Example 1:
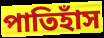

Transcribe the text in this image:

পাতিহাঁস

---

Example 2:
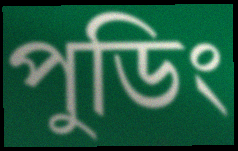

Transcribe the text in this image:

পুডিং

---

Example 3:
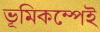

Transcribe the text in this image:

ভূমিকম্পেই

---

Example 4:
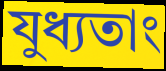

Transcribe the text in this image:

যুধ্যতাং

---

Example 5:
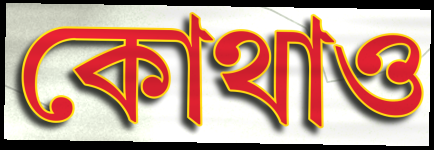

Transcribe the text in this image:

কোথাও